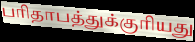
பரிதாபத்துக்குரியது